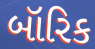
બૉરિક